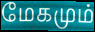
மேகமும்